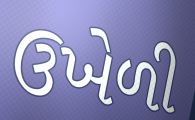
ઉખેળી